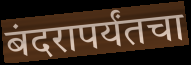
बंदरापर्यंतचा